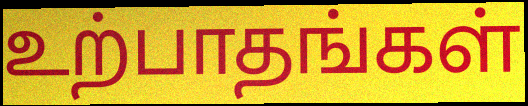
உற்பாதங்கள்